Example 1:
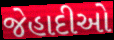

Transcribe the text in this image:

જેહાદીઓ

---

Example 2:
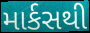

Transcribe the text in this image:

માર્કસથી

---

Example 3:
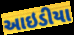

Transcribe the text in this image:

આઇડીયા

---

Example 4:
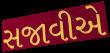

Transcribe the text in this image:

સજાવીએ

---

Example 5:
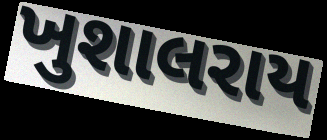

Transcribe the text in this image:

ખુશાલરાય